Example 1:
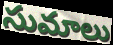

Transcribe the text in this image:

సుమాలు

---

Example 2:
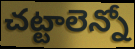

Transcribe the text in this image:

చట్టాలెన్నో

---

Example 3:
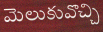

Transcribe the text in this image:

మెలుకువొచ్చి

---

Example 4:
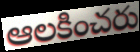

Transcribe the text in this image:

ఆలకించరు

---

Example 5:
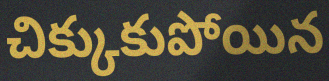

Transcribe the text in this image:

చిక్కుకుపోయిన